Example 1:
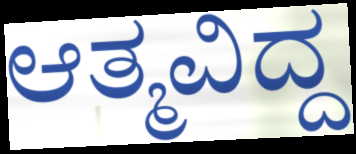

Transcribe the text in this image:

ಆತ್ಮವಿದ್ದ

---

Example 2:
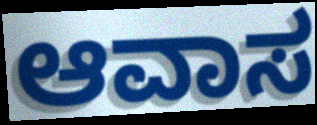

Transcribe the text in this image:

ಆವಾಸ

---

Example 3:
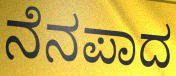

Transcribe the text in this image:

ನೆನಪಾದ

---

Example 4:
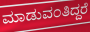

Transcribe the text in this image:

ಮಾಡುವಂತಿದ್ದರೆ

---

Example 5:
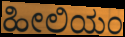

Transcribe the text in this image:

ಹೀಲಿಯಂ